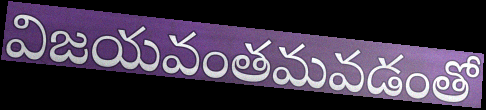
విజయవంతమవడంతో